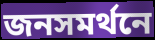
জনসমর্থনে